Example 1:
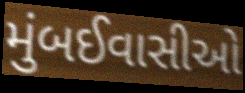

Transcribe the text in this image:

મુંબઈવાસીઓ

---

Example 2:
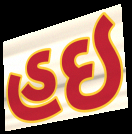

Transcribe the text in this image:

હઇ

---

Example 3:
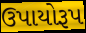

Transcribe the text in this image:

ઉપાયોરૂપ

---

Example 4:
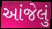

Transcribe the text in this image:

આંજેલું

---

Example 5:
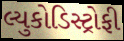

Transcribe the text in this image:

લ્યુકોડિસ્ટ્રોફી